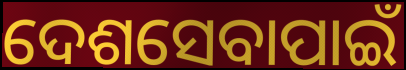
ଦେଶସେବାପାଇଁ